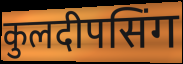
कुलदीपसिंग